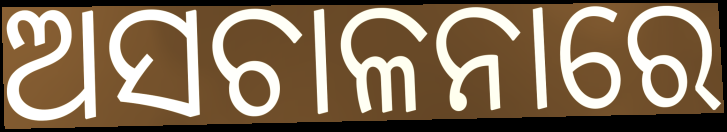
ଅସଚାଳନାରେ